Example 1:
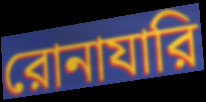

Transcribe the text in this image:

রোনাযারি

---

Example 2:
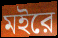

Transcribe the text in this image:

মইরে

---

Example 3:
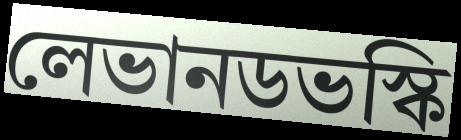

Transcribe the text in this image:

লেভানডভস্কি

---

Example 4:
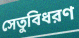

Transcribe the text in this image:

সেতুবিধরণ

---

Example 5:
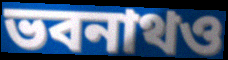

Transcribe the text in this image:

ভবনাথও